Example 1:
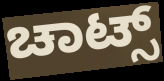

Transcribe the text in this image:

ಚಾಟ್ಸ್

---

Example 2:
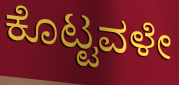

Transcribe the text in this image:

ಕೊಟ್ಟವಳೇ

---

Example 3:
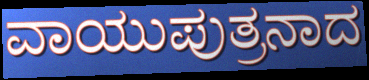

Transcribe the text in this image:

ವಾಯುಪುತ್ರನಾದ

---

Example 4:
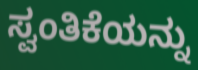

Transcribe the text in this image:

ಸ್ವಂತಿಕೆಯನ್ನು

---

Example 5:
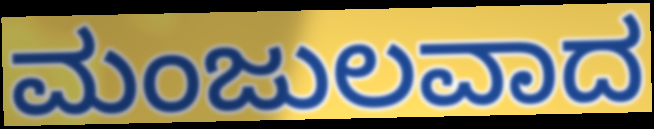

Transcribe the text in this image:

ಮಂಜುಲವಾದ